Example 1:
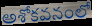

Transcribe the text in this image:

అశోకవనంలో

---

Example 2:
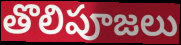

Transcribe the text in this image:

తొలిపూజలు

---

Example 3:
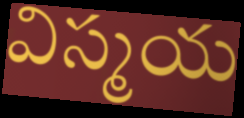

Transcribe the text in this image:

విస్మయ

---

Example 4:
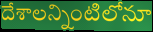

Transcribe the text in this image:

దేశాలన్నింటిలోనూ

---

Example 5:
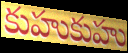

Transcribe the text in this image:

కుహుకుహు